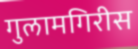
गुलामगिरीस